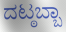
ದಟ್ಠಬ್ಬಾ